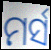
ମର୍ସ